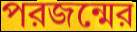
পরজন্মের